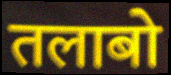
तलाबो